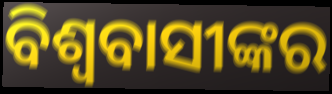
ବିଶ୍ୱବାସୀଙ୍କର